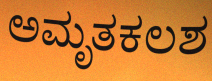
ಅಮೃತಕಲಶ